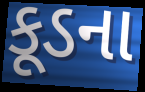
કૂડના